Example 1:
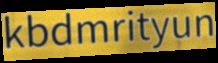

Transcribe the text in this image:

kbdmrityun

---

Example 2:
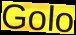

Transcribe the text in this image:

Golo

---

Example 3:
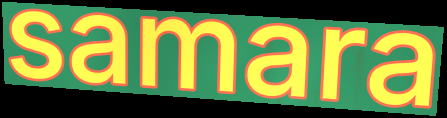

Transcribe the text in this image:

samara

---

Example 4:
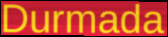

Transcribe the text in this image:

Durmada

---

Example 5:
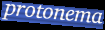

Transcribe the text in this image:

protonema